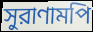
সুরাণামপি